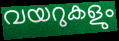
വയറുകളും